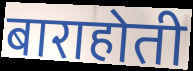
बाराहोती